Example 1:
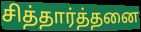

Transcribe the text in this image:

சித்தார்த்தனை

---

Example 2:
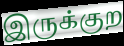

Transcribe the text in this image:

இருக்குற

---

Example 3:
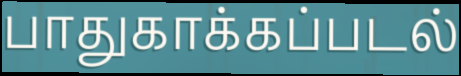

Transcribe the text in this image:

பாதுகாக்கப்படல்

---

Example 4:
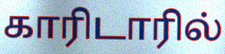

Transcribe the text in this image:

காரிடாரில்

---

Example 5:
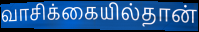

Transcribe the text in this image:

வாசிக்கையில்தான்